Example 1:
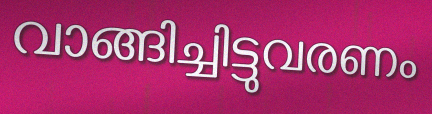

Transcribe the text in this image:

വാങ്ങിച്ചിട്ടുവരണം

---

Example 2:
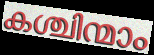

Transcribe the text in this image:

കശ്ചിന്മാം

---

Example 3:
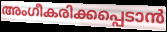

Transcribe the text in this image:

അംഗീകരിക്കപ്പെടാൻ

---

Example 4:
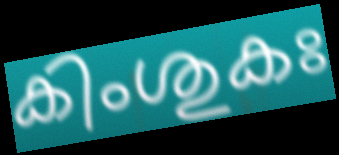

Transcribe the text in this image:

കിംശുകഃ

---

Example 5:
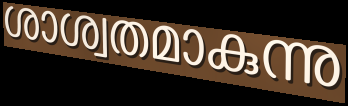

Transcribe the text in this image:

ശാശ്വതമാകുന്നു